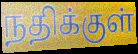
நதிக்குள்